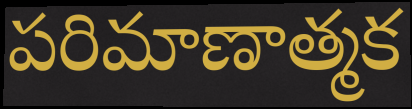
పరిమాణాత్మక